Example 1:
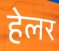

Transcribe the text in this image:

हेलर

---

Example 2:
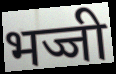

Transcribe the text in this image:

भज्जी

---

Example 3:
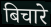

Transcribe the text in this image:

बिचारे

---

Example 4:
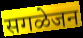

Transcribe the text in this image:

सगळेजन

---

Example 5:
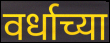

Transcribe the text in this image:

वर्धाच्या